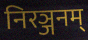
निरञ्जनम्